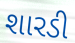
શારડી